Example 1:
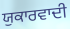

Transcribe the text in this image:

ਯੁਕਾਰਵਾਦੀ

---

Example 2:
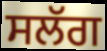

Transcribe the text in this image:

ਸਲੱਗ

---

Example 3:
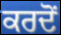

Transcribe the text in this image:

ਕਰਦੋਂ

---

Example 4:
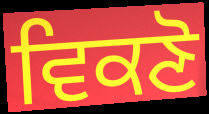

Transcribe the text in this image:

ਵਿਕਣੋ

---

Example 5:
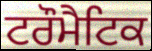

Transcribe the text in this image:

ਟਰੌਮੈਟਿਕ